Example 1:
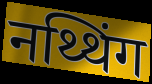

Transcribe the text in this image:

नथ्थिंग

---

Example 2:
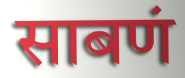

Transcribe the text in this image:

साबणं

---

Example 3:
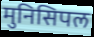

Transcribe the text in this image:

मुनिसिपल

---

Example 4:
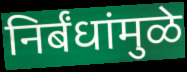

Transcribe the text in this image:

निर्बंधांमुळे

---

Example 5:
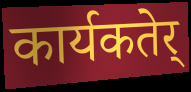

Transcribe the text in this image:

कार्यकतेर्